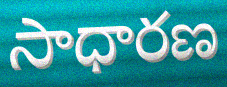
సాధారణ